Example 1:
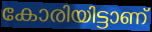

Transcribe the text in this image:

കോരിയിട്ടാണ്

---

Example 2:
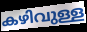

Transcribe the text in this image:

കഴിവുള്ള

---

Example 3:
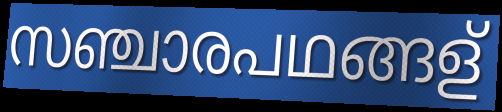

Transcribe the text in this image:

സഞ്ചാരപഥങ്ങള്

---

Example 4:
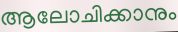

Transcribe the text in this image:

ആലോചിക്കാനും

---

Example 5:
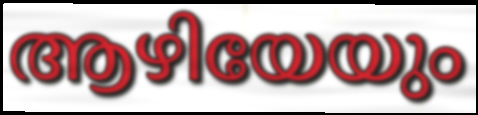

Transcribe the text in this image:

ആഴിയേയും